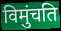
विमुंचति